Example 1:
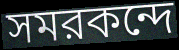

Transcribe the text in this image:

সমরকন্দে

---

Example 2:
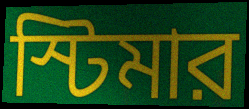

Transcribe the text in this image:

স্টিমার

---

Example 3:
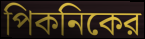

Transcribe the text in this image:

পিকনিকের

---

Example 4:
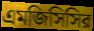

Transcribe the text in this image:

এমজিসিসির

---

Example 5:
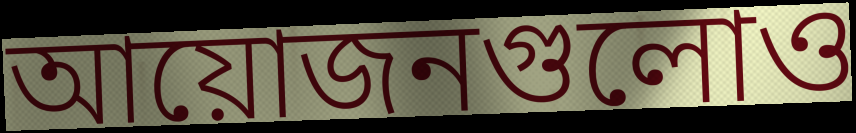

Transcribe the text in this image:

আয়োজনগুলোও